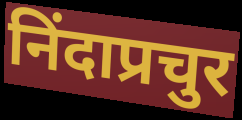
निंदाप्रचुर